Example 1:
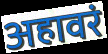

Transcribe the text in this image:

अहावरं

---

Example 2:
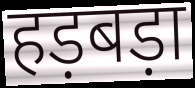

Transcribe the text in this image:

हड़बड़ा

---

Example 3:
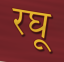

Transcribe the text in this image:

रघू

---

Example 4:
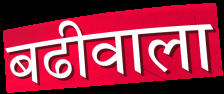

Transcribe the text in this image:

बढीवाला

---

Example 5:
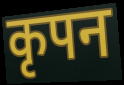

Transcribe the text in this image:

कृपन